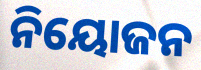
ନିୟୋଜନ